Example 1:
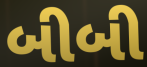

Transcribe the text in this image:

બીબી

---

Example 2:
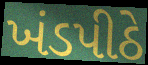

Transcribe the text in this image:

ખંડપીઠે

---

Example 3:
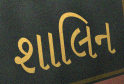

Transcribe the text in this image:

શાલિન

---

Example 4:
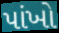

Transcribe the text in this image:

પાંખો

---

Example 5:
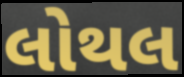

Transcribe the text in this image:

લોથલ